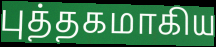
புத்தகமாகிய